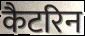
कैटरिन